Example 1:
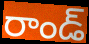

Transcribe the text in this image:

రాండ్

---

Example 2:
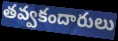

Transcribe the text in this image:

తవ్వకందారులు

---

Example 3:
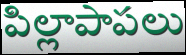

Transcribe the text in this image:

పిల్లాపాపలు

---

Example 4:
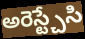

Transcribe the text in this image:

అరెస్ట్చేసి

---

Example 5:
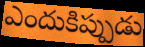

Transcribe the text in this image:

ఎందుకిప్పుడు